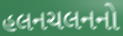
હલનચલનનો